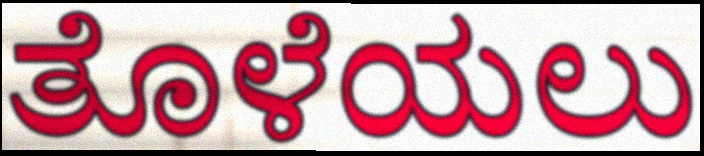
ತೊಳೆಯಲು